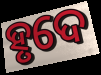
ହୃଦେ